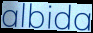
albida